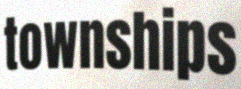
townships